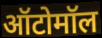
ऑटोमॉल